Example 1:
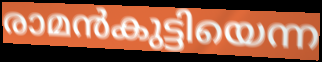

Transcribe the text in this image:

രാമൻകുട്ടിയെന്ന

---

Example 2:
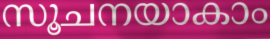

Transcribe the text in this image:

സൂചനയാകാം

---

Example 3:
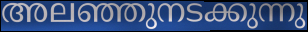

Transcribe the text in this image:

അലഞ്ഞുനടക്കുന്നു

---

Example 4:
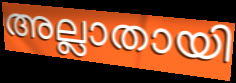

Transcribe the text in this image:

അല്ലാതായി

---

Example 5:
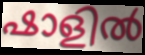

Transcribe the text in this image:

ഷാളിൽ